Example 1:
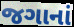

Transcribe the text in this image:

જગાનાં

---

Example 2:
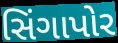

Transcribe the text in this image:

સિંગાપોર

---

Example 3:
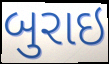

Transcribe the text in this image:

બુરાઇ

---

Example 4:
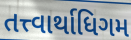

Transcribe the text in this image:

તત્ત્વાર્થાધિગમ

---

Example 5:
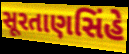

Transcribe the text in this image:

સૂરતાણસિંહે